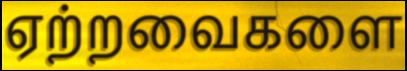
ஏற்றவைகளை